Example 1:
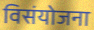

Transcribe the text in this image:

विसंयोजना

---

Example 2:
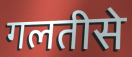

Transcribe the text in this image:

गलतीसे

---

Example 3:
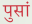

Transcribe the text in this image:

पुसां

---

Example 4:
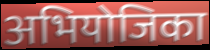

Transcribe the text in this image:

अभियोजिका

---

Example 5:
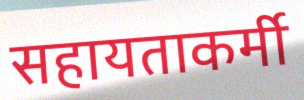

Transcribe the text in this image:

सहायताकर्मी